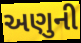
અણુની